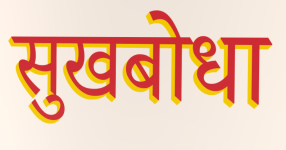
सुखबोधा